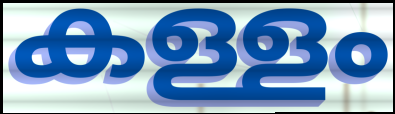
കള്ളം